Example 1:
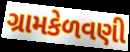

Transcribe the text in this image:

ગ્રામકેળવણી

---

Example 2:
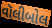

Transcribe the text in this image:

વૉલીબોલ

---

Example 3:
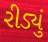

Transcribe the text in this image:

રીડ્યું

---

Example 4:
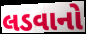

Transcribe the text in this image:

લડવાનો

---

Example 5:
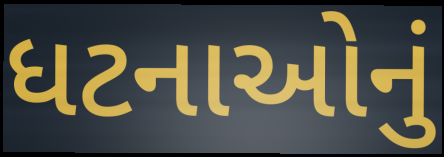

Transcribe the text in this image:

ધટનાઓનું